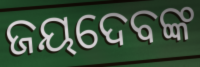
ଜୟଦେବଙ୍କ